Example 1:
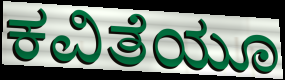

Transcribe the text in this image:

ಕವಿತೆಯೂ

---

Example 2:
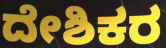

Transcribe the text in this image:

ದೇಶಿಕರ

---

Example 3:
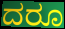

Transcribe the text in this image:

ದರೂ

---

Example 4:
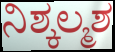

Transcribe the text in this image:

ನಿಶ್ಕಲ್ಮಶ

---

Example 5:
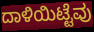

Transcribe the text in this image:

ದಾಳಿಯಿಟ್ಟೆವು